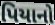
પિયાનો